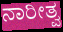
ನಾರೀತ್ವ